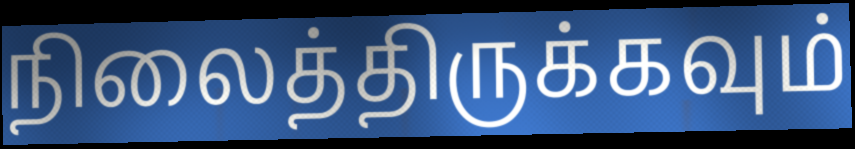
நிலைத்திருக்கவும்